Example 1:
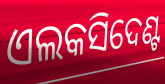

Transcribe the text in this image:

ଏଲକସିଦେଣ୍ଟ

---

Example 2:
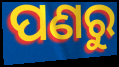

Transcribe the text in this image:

ପଣରୁ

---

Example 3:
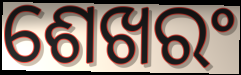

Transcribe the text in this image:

ଶେଖରଂ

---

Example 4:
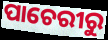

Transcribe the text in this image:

ପାଚେରୀରୁ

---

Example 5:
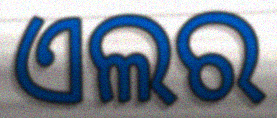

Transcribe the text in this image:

ଏଲର